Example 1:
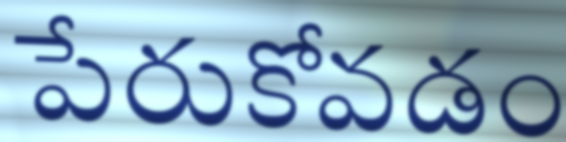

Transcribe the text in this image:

పేరుకోవడం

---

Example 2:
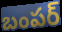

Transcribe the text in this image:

బంపర్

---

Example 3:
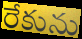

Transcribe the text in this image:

రేకును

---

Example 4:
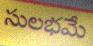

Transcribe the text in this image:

సులభమే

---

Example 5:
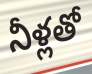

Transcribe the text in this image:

నీళ్లతో